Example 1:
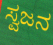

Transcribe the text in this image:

ಸ್ವಜನ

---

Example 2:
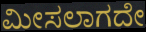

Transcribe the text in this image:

ಮೀಸಲಾಗದೇ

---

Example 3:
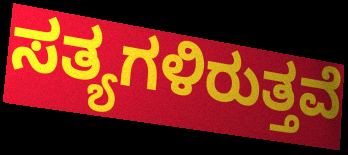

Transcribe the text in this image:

ಸತ್ಯಗಳಿರುತ್ತವೆ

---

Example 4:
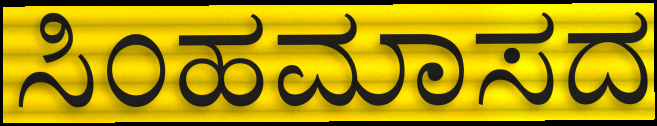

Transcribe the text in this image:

ಸಿಂಹಮಾಸದ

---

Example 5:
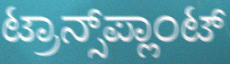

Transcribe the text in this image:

ಟ್ರಾನ್ಸ್‌ಪ್ಲಾಂಟ್